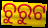
ଚୁରୁଟ